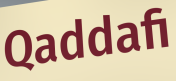
Qaddafi